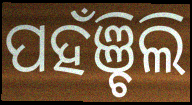
ପହଁଞ୍ଚିଲି